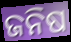
ଜନିଷ